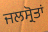
ਜਲਸ੍ਰੋਤਾਂ